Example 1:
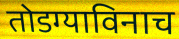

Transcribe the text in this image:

तोडग्याविनाच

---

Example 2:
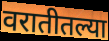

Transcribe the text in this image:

वरातीतल्या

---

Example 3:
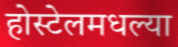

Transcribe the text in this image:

होस्टेलमधल्या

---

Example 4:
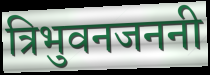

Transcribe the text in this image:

त्रिभुवनजननी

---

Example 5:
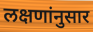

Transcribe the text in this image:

लक्षणांनुसार